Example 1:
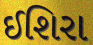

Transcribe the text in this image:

ઈશિરા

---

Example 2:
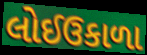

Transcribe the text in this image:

લોઈઉકાળા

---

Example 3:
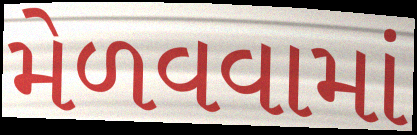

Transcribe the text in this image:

મેળવવામાં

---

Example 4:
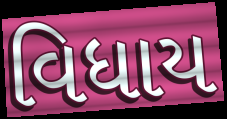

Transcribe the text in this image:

વિધાય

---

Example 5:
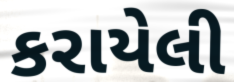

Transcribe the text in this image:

કરાયેલી